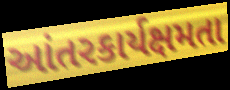
આંતરકાર્યક્ષમતા